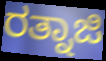
ರತ್ನಾಜಿ